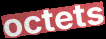
octets